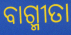
ବାଗ୍ମୀତା